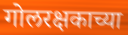
गोलरक्षकाच्या